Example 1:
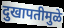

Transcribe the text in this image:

दुखापतीमुळे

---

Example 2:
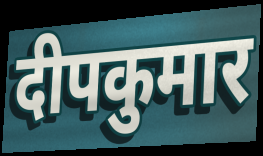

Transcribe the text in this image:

दीपकुमार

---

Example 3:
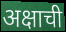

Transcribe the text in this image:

अक्षाची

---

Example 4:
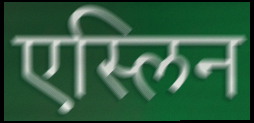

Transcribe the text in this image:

एस्लिन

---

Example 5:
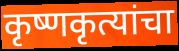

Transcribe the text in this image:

कृष्णकृत्यांचा